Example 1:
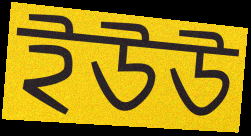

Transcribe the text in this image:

ইউউ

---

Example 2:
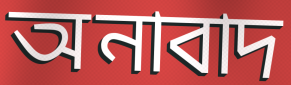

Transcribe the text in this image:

অনাবাদ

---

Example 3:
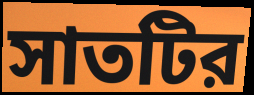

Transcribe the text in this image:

সাতটির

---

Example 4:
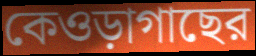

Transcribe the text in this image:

কেওড়াগাছের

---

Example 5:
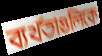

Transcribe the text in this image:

ব্যর্থতাগুলিকে